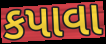
કપાવા